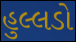
હુલ્લડો